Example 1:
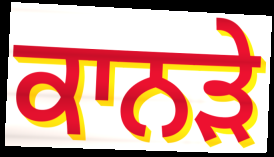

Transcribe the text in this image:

ਕਾਨੜੇ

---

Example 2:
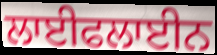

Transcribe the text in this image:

ਲਾਈਫਲਾਈਨ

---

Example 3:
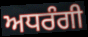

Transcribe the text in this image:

ਅਧਰੰਗੀ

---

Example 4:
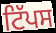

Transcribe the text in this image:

ਟਿੱਪਸ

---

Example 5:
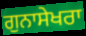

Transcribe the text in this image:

ਗੁਨਾਸੇਖਰਾ